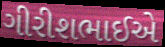
ગીરીશભાઈએ